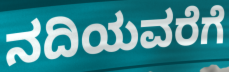
ನದಿಯವರೆಗೆ